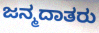
ಜನ್ಮದಾತರು